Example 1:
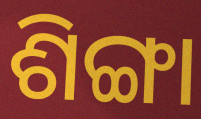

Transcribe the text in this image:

ଶିଙ୍ଗା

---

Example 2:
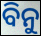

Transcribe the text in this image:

ବିନୁ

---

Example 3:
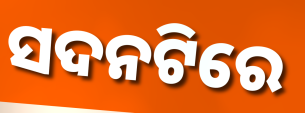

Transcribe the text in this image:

ସଦନଟିରେ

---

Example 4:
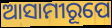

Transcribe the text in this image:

ଆସାମୀରୂପେ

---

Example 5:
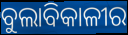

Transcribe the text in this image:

ବୁଲାବିକାଳୀର